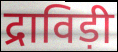
द्राविड़ी